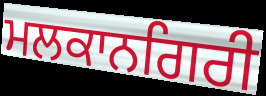
ਮਲਕਾਨਗਿਰੀ